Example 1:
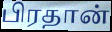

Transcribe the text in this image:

பிரதான்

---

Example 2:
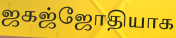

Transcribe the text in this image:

ஜகஜ்ஜோதியாக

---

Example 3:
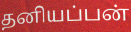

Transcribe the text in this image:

தனியப்பன்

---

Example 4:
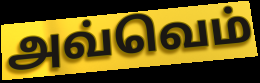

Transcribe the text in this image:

அவ்வெம்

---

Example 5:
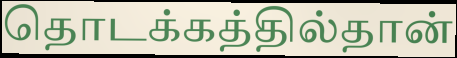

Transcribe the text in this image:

தொடக்கத்தில்தான்